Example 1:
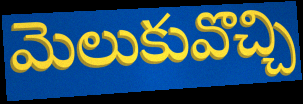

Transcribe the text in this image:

మెలుకువొచ్చి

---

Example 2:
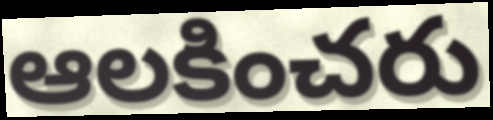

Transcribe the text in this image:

ఆలకించరు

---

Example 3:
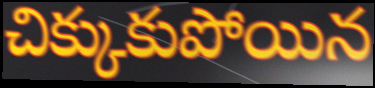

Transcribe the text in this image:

చిక్కుకుపోయిన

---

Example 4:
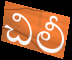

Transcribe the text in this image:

చిలీ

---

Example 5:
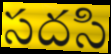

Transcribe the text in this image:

సదసి